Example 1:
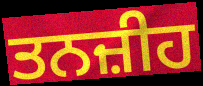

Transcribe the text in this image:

ਤਨਜ਼ੀਹ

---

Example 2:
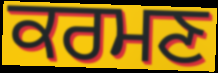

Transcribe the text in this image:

ਕਰਮਣ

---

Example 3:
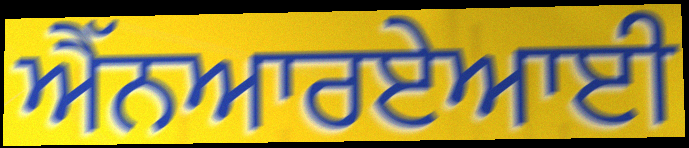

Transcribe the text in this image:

ਐੱਨਆਰਏਆਈ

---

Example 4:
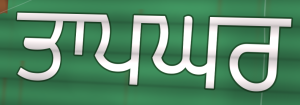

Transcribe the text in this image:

ਤਾਪਘਰ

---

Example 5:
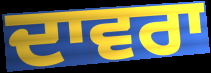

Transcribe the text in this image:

ਦਾਵਰਾ